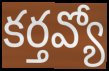
కర్తవ్యో